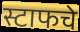
स्टाफचे